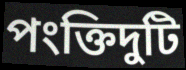
পংক্তিদুটি